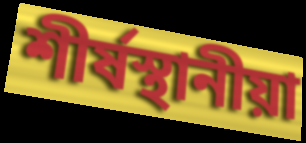
শীর্ষস্থানীয়া